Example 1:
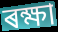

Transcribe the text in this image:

ৰক্ষা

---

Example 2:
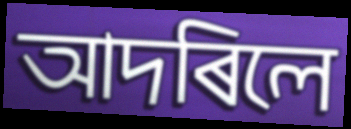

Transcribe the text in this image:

আদৰিলে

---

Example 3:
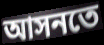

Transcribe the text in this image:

আসনতে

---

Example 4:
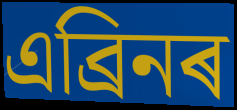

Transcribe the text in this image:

এব্ৰিনৰ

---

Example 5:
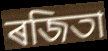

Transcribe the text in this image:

ৰজিতা